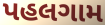
પહલગામ